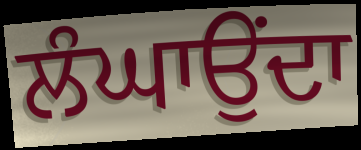
ਲੰਘਾਉਂਦਾ